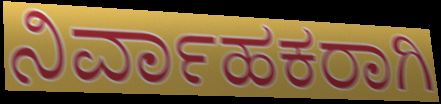
ನಿರ್ವಾಹಕರಾಗಿ